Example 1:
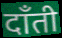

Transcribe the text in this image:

दाँती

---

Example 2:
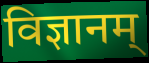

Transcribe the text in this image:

विज्ञानम्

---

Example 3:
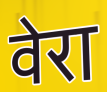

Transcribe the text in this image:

वेरा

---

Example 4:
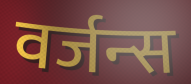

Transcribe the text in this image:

वर्जन्स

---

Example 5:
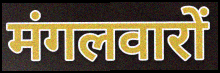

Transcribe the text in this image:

मंगलवारों